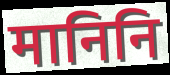
मानिनि